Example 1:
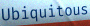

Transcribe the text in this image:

Ubiquitous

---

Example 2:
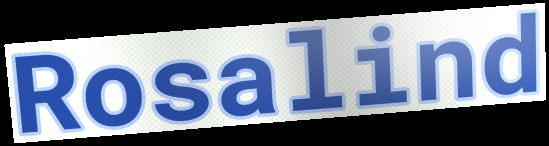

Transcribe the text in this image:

Rosalind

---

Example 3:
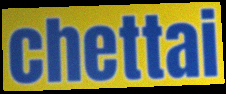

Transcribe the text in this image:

chettai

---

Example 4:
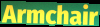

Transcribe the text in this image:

Armchair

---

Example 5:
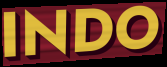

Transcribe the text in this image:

INDO